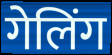
गेलिंग